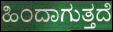
ಹಿಂದಾಗುತ್ತದೆ